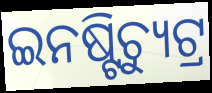
ଇନଷ୍ଟିଚ୍ୟୁଟ୍ର